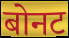
बोनट